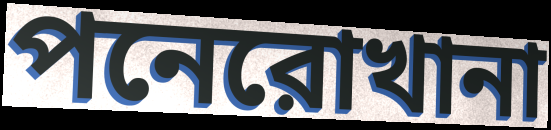
পনেরোখানা